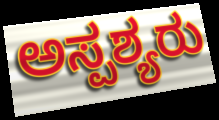
ಅಸ್ಪಶ್ಯರು